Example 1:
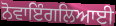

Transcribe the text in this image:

ਨੋਵਾਇੰਗਲਿਆਈ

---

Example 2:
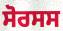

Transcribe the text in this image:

ਸੋਰਸਸ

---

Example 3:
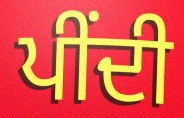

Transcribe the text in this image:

ਪੀਂਦੀ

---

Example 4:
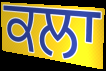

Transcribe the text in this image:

ਕਲਾ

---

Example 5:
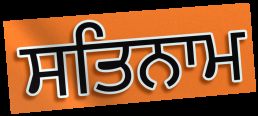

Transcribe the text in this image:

ਸਤਿਨਾਮ